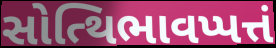
સોત્થિભાવપ્પત્તં